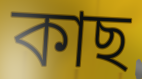
কাছ